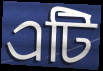
এটি